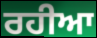
ਰਹੀਆ